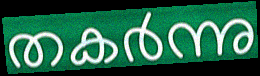
തകർന്നു